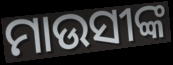
ମାଉସୀଙ୍କ